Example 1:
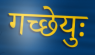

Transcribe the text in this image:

गच्छेयुः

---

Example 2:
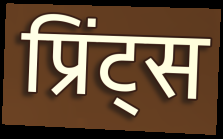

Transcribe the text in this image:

प्रिंट्स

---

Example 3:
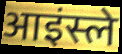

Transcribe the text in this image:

आइंस्ले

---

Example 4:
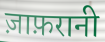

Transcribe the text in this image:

ज़ाफ़रानी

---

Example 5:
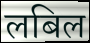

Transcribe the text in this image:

लबिल